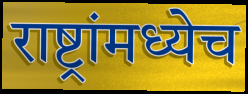
राष्ट्रांमध्येच